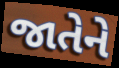
જાતેને